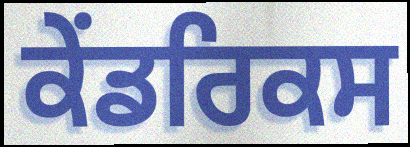
ਕੇਂਡਰਿਕਸ